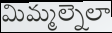
మిమ్మల్నెలా